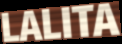
LALITA